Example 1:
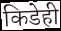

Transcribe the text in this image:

किडेही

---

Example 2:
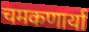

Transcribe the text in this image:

चमकणार्या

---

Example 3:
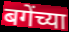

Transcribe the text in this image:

बगेंच्या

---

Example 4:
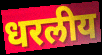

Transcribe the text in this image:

धरलीय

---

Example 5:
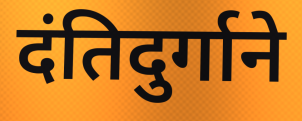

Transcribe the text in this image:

दंतिदुर्गाने